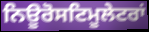
ਨਿਊਰੋਸਟਿਮੂਲੇਟਰਾਂ